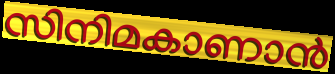
സിനിമകാണാൻ